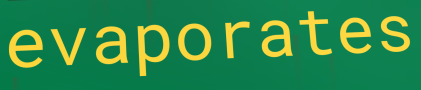
evaporates